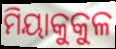
ମିୟାକୁକୁଳ